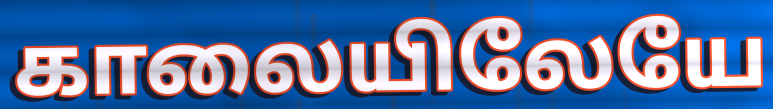
காலையிலேயே